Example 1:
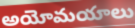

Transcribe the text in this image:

అయోమయాలు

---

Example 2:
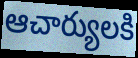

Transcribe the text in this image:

ఆచార్యులకి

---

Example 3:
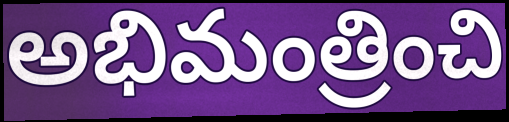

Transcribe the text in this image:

అభిమంత్రించి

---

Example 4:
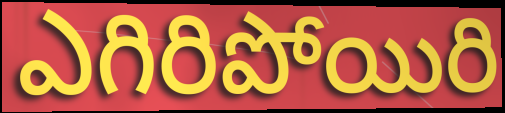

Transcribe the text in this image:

ఎగిరిపోయిరి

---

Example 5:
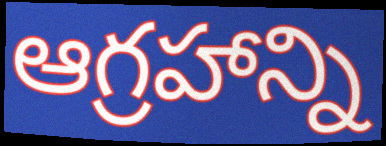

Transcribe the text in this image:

ఆగ్రహాన్ని